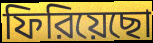
ফিরিয়েছো